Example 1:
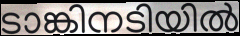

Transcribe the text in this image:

ടാങ്കിനടിയിൽ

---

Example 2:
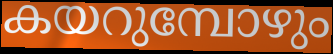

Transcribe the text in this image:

കയറുമ്പോഴും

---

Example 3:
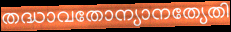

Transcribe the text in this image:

തദ്ധാവതോന്യാനത്യേതി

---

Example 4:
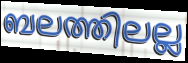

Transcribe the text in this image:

ബലത്തിലല്ല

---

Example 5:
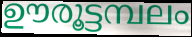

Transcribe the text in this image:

ഊരൂട്ടമ്പലം